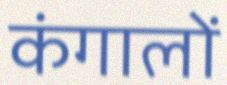
कंगालों